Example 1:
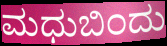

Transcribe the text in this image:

ಮಧುಬಿಂದು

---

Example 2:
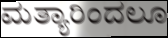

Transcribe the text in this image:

ಮತ್ಯಾರಿಂದಲೂ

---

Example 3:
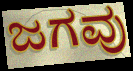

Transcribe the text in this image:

ಜಗವು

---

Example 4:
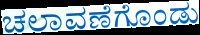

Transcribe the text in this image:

ಚಲಾವಣೆಗೊಂಡು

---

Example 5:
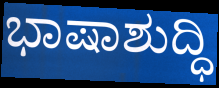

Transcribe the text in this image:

ಭಾಷಾಶುದ್ಧಿ